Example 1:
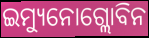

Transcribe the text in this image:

ଇମ୍ୟୁନୋଗ୍ଲୋବିନ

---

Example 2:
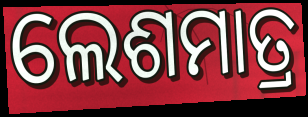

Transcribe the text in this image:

ଲେଶମାତ୍ର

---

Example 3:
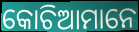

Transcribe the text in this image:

କୋଚିଆମାନେ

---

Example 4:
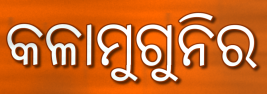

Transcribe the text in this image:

କଳାମୁଗୁନିର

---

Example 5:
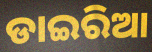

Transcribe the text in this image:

ଡାଇରିଆ